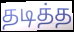
தடித்த